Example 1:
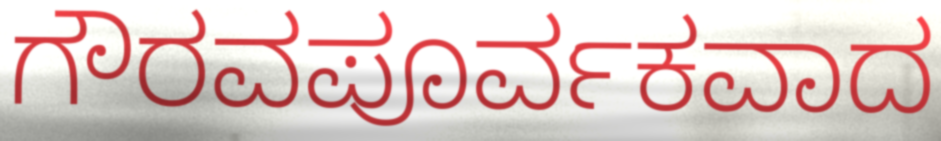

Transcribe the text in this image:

ಗೌರವಪೂರ್ವಕವಾದ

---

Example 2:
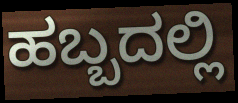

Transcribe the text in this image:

ಹಬ್ಬದಲ್ಲಿ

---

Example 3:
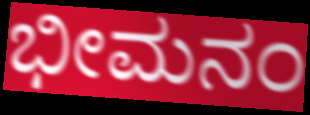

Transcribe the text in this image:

ಭೀಮನಂ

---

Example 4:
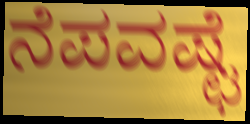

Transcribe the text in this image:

ನೆಪವಷ್ಟೆ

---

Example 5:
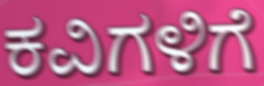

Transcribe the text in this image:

ಕವಿಗಳಿಗೆ